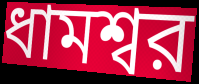
ধামশ্বর